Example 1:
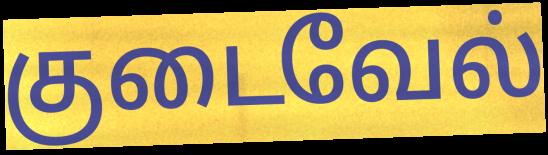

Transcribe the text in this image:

குடைவேல்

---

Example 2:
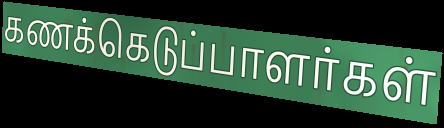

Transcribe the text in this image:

கணக்கெடுப்பாளர்கள்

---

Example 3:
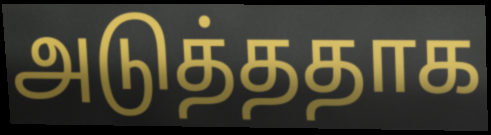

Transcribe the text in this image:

அடுத்ததாக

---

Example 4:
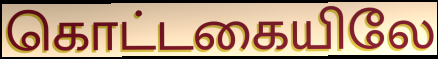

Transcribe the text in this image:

கொட்டகையிலே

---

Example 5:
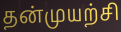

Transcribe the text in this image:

தன்முயற்சி